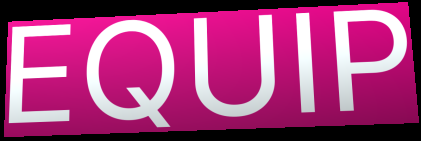
EQUIP